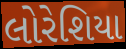
લોરેશિયા